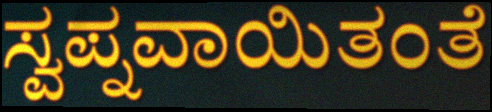
ಸ್ವಪ್ನವಾಯಿತಂತೆ